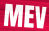
MEV